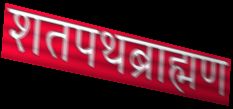
शतपथब्राह्मण